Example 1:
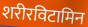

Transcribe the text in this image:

शरीरविटामिन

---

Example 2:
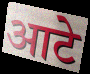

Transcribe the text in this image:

आटे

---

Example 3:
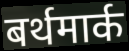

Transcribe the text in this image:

बर्थमार्क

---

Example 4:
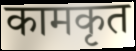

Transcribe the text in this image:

कामकृत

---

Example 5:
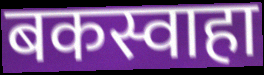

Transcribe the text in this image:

बकस्वाहा